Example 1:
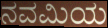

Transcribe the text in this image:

ನವಮಿಯ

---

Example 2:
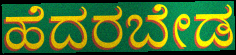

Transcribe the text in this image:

ಹೆದರಬೇಡ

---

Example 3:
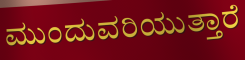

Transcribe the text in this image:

ಮುಂದುವರಿಯುತ್ತಾರೆ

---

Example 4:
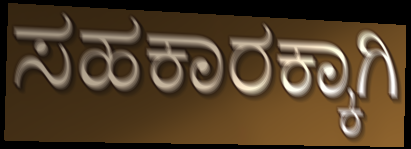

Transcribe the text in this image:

ಸಹಕಾರಕ್ಕಾಗಿ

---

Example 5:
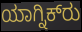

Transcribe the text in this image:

ಯಾಗ್ನಿಕ್‍ರು